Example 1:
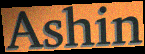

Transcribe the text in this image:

Ashin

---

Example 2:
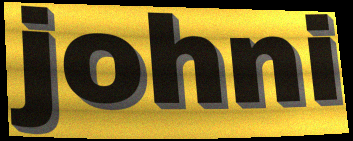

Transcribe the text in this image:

johni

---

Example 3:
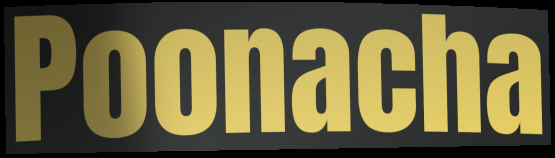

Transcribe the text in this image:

Poonacha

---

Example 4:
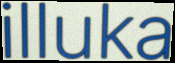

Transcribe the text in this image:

illuka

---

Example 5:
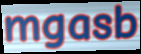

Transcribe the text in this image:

mgasb